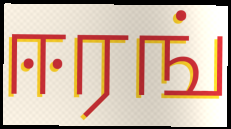
ஈரங்